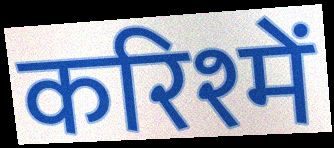
करिश्में